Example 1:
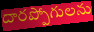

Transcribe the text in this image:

దారప్పోగులను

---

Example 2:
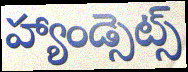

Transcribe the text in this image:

హ్యాండ్సెట్స్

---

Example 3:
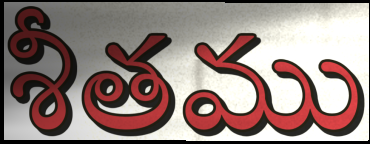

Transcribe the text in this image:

శీతము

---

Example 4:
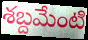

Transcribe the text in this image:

శబ్దమేంటి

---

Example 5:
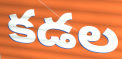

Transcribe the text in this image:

కడల